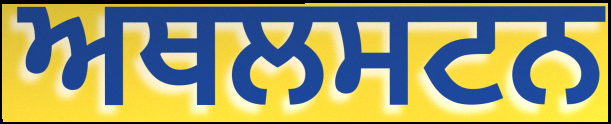
ਅਥਲਸਟਨ